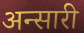
अन्सारी